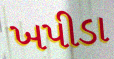
ખપીડા